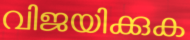
വിജയിക്കുക